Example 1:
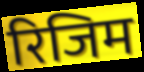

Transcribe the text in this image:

रिजिम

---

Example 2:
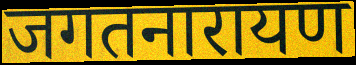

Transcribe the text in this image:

जगतनारायण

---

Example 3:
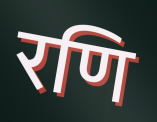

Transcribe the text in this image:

रणि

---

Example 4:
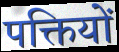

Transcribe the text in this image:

पक्तियों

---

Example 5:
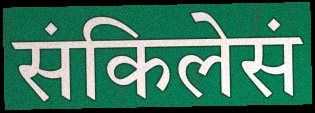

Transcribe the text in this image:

संकिलेसं